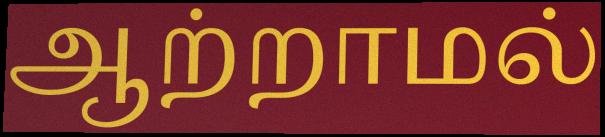
ஆற்றாமல்